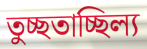
তুচ্ছতাচ্ছিল্য